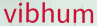
vibhum